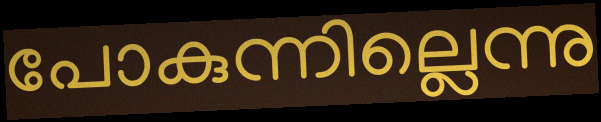
പോകുന്നില്ലെന്നു